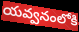
యవ్వనంలోకి